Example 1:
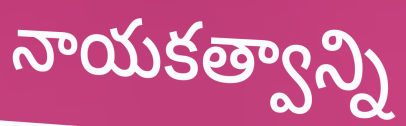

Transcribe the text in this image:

నాయకత్వాన్ని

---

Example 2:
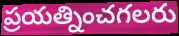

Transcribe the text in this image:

ప్రయత్నించగలరు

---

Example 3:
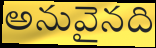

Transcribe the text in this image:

అనువైనది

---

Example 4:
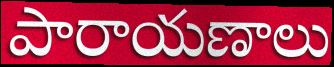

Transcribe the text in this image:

పారాయణాలు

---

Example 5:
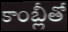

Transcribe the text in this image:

కాంబ్లీతో